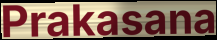
Prakasana